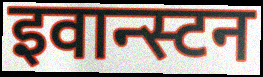
इवान्स्टन